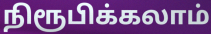
நிரூபிக்கலாம்